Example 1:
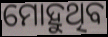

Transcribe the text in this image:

ମୋହୁଥିବ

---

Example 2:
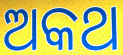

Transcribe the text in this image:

ଅକଥ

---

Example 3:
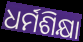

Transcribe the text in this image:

ଧର୍ମଶିକ୍ଷା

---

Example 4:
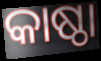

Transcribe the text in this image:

କାଷ୍ଠା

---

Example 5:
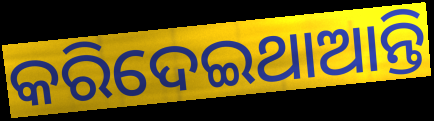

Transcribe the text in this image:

କରିଦେଇଥାଆନ୍ତି